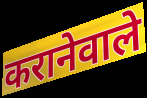
करानेवाले